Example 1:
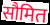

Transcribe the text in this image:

सौमित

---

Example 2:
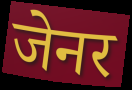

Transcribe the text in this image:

जेनर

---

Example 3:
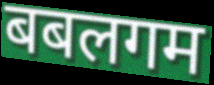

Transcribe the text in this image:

बबलगम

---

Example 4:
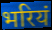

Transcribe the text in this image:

भरियं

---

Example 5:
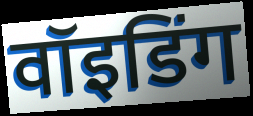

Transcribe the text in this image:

वॉइडिंग